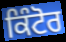
ਕਿੰਟੋਰ